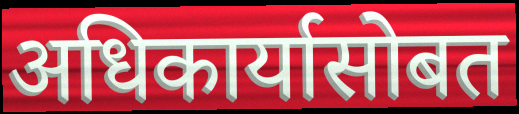
अधिकार्यासोबत